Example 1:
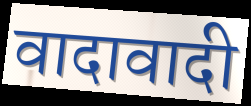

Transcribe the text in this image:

वादावादी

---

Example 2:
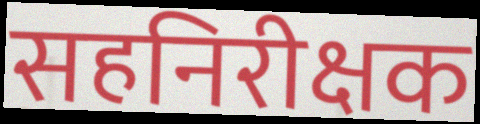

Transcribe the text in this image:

सहनिरीक्षक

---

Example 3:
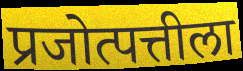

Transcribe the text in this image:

प्रजोत्पत्तीला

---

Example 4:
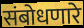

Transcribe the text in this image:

संबोधणारे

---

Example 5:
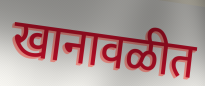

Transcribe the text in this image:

खानावळीत